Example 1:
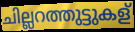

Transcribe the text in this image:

ചില്ലറത്തുട്ടുകള്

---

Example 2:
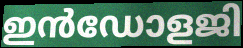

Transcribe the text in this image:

ഇൻഡോളജി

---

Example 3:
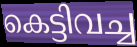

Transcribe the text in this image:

കെട്ടിവച്ച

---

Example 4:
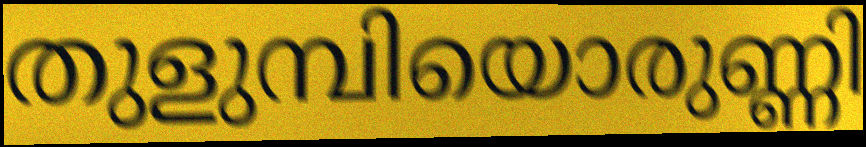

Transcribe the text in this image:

തുളുമ്പിയൊരുണ്ണി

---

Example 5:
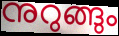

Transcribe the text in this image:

നുറുങ്ങും